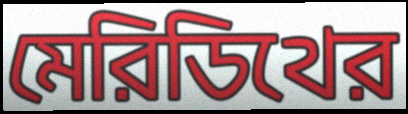
মেরিডিথের